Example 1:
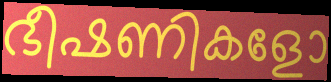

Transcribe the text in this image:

ഭീഷണികളോ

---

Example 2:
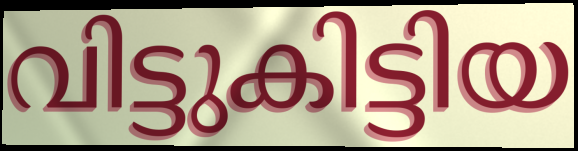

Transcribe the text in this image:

വിട്ടുകിട്ടിയ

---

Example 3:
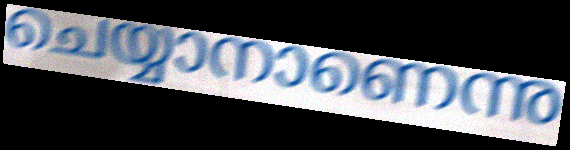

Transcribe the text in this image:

ചെയ്യാനാണെന്നു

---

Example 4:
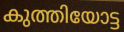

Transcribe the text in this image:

കുത്തിയോട്ട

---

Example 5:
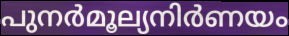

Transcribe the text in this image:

പുനർമൂല്യനിർണയം